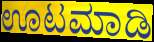
ಊಟಮಾಡಿ